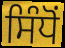
ਸਿੰਧੋਂ